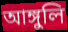
আঙ্গুলি